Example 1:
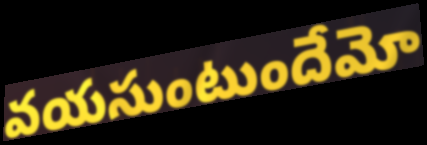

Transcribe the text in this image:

వయసుంటుందేమో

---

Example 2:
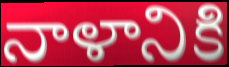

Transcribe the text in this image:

నాళానికి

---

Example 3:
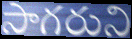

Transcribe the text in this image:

సాగరుని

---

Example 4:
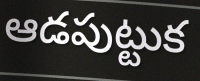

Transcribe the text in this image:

ఆడపుట్టుక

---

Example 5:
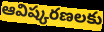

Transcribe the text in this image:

ఆవిష్కరణలకు